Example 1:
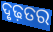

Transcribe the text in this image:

ଦୃଢ଼ତର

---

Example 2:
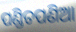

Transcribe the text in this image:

ପଣ୍ଡିତପଣିଆ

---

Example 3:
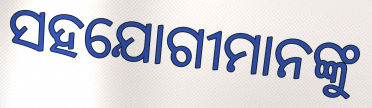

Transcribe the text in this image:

ସହଯୋଗୀମାନଙ୍କୁ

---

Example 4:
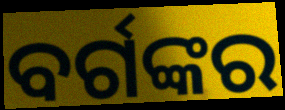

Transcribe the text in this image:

ବର୍ଗଙ୍କର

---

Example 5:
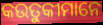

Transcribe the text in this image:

କଉତୁକୀମାନେ